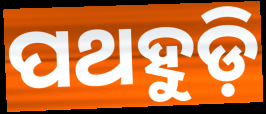
ପଥହୁଡ଼ି